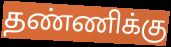
தண்ணிக்கு